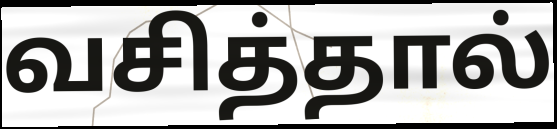
வசித்தால்